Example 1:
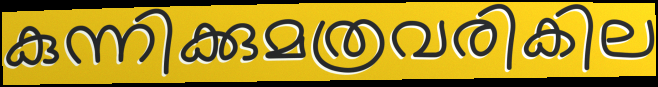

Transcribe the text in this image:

കുന്നിക്കുമത്രവരികില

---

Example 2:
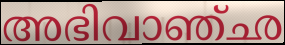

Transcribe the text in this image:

അഭിവാഞ്ഛ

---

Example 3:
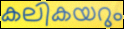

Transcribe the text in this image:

കലികയറും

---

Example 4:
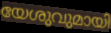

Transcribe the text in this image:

യേശുവുമായി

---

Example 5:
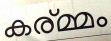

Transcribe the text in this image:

കര്മ്മം